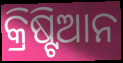
କ୍ରିଷ୍ଟିଆନ